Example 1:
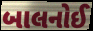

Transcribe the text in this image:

બાલનોઈ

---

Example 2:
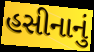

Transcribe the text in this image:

હસીનાનું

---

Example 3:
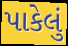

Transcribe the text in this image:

પાકેલું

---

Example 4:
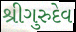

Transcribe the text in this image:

શ્રીગુરુદેવ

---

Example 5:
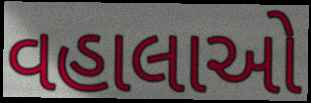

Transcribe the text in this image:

વહાલાઓ